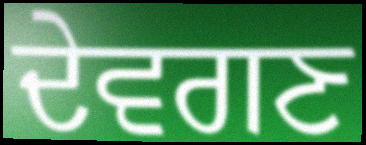
ਦੇਵਗਣ